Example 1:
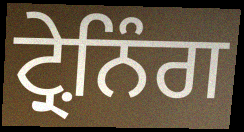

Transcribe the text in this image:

ਟ੍ਰ਼ੇਨਿੰਗ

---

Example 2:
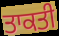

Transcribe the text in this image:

ਤਾਕਤੀ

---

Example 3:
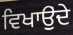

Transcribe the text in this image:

ਵਿਖਾਉੁਂਦੇ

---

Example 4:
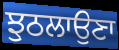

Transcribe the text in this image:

ਝੁਠਲਾਉਣਾ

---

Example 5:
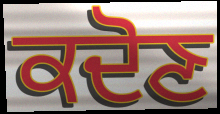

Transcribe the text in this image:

ਕਦੋਣ